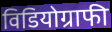
विडियोग्राफी